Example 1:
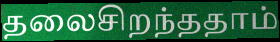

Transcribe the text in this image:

தலைசிறந்ததாம்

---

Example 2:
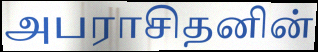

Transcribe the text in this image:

அபராசிதனின்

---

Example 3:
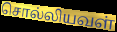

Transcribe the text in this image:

சொல்லியவள்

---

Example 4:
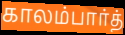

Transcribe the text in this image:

காலம்பார்த்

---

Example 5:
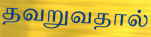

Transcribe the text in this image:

தவறுவதால்